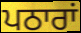
ਪਠਾਰਾਂ